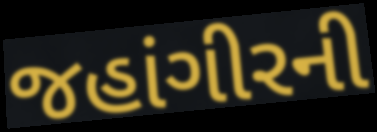
જહાંગીરની